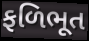
ફળિભૂત